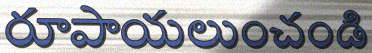
రూపాయలుంచండి